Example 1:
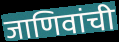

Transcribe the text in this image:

जाणिवांची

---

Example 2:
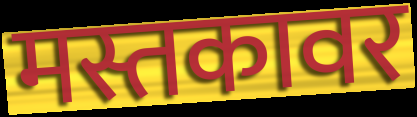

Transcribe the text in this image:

मस्तकावर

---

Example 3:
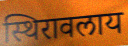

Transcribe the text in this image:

स्थिरावलाय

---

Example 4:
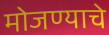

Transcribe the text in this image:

मोजण्याचे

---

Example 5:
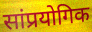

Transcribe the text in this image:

सांप्रयोगिक